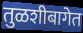
तुळशीबागेत